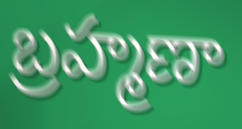
బ్రహ్మణా